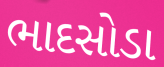
ભાદસોડા